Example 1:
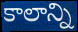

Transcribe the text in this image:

కాలాన్ని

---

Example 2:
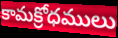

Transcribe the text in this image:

కామక్రోధములు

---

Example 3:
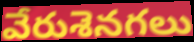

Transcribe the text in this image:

వేరుశెనగలు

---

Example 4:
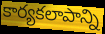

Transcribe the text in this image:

కార్యకలాపాన్ని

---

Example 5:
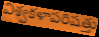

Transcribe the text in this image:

విశ్వకళాపరిషత్తు